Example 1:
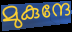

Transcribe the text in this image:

മുകുന്ദേ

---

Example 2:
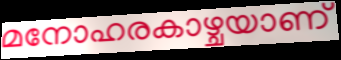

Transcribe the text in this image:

മനോഹരകാഴ്ചയാണ്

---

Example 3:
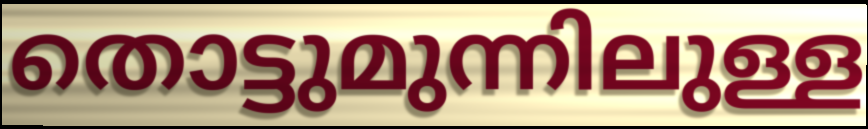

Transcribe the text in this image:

തൊട്ടുമുന്നിലുള്ള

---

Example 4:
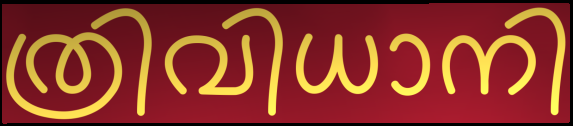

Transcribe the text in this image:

ത്രിവിധാനി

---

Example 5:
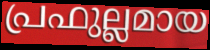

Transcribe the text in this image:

പ്രഫുല്ലമായ